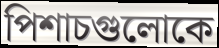
পিশাচগুলোকে